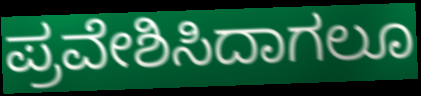
ಪ್ರವೇಶಿಸಿದಾಗಲೂ